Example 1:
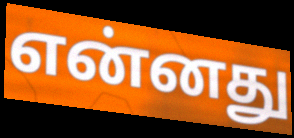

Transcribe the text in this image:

என்னது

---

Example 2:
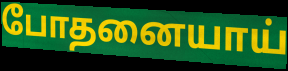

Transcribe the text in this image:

போதனையாய்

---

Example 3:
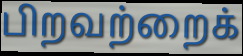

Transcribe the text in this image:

பிறவற்றைக்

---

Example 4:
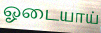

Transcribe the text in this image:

ஓடையாய்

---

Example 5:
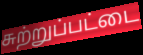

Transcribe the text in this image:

சுற்றுப்பட்டை